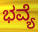
ಭವ್ಯೆ